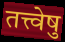
तत्त्वेषु